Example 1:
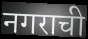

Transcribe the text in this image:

नगराची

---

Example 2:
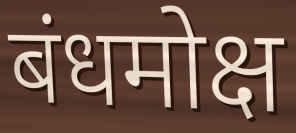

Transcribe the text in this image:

बंधमोक्ष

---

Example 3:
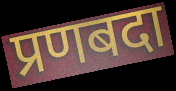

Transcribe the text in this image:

प्रणबदा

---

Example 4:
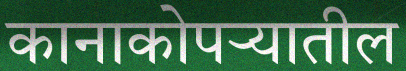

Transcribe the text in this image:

कानाकोपऱ्यातील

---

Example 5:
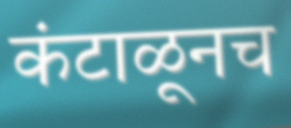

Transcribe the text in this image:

कंटाळूनच